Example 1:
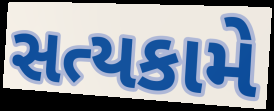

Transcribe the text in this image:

સત્યકામે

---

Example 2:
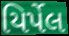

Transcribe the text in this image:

યિર્પેલ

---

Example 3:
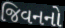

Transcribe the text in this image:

જિવનનો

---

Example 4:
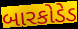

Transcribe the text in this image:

બારકોડેડ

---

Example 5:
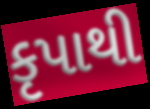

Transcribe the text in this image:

કૃપાથી